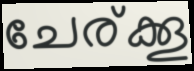
ചേര്ക്കൂ